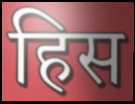
हिस